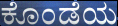
ಕೊಂಡೆಯ